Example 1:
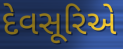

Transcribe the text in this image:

દેવસૂરિએ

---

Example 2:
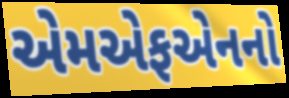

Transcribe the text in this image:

એમએફએનનો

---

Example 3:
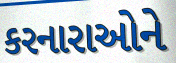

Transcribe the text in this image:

કરનારાઓને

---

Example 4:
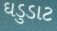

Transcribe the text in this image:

ઘડુડાટ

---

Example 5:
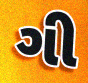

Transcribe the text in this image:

ગી